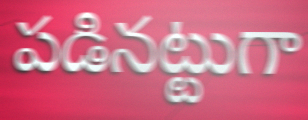
పడినట్టుగా